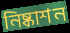
নিষ্কাশন